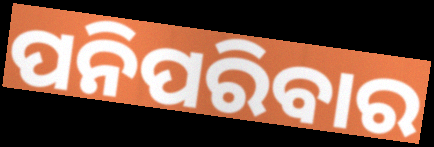
ପନିପରିବାର